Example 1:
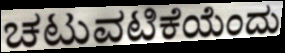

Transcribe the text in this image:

ಚಟುವಟಿಕೆಯೆಂದು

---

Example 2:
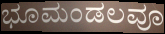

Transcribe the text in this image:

ಭೂಮಂಡಲವೂ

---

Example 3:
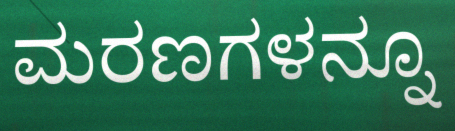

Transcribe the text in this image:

ಮರಣಗಳನ್ನೂ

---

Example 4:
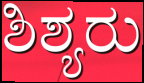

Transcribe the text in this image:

ಶಿಶ್ಯರು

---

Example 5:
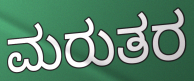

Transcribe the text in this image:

ಮರುತರ